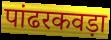
पांढरकवड़ा